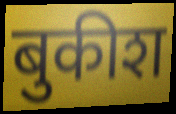
बुकीश